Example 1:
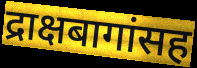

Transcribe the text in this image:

द्राक्षबागांसह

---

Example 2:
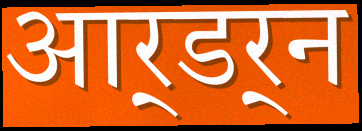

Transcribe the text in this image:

आर्डर्न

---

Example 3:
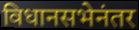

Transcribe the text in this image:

विधानसभेनंतर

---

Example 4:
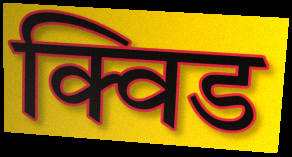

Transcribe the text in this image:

क्विड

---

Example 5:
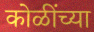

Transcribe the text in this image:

कोळींच्या